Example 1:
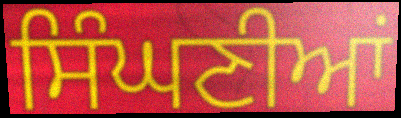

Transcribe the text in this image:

ਸਿੰਘਣੀਆਂ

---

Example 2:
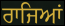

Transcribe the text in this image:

ਰਾਜਿਆਂ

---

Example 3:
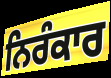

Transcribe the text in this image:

ਨਿਰੰਕਾਰ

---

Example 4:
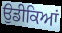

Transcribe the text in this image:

ਉਡੀਕਿਆਂ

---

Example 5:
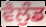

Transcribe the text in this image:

ਵੈਲੁੰਡ